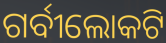
ଗର୍ବୀଲୋକଟି